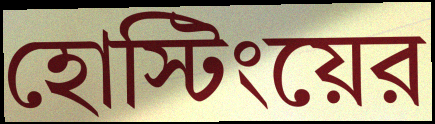
হোস্টিংয়ের